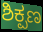
ಶಿಕ್ಪಣ